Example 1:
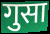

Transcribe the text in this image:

गुसा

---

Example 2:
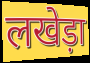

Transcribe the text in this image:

लखेड़ा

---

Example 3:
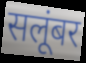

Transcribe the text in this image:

सलूंबर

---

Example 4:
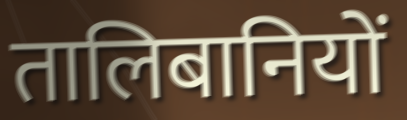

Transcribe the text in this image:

तालिबानियों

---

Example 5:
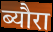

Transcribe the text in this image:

ब्‍यौरा